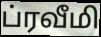
ப்ரவீமி